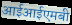
आईआईएमबी